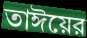
তাঈয়ের